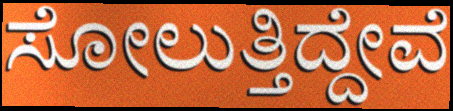
ಸೋಲುತ್ತಿದ್ದೇವೆ